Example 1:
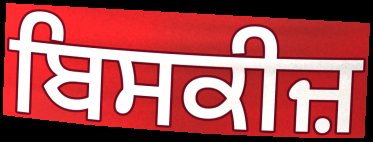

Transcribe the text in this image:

ਬਿਸਕੀਜ਼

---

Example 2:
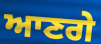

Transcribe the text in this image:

ਆਣਗੇ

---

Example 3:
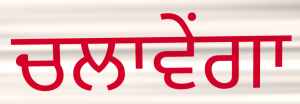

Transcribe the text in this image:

ਚਲਾਵੇਂਗਾ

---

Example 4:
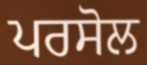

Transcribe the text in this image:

ਪਰਸੋਲ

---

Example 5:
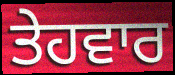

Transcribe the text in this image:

ਤੇਹਵਾਰ